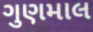
ગુણમાલ